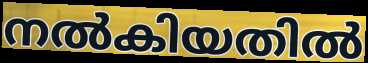
നൽകിയതിൽ